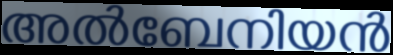
അൽബേനിയൻ